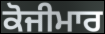
ਕੋਜੀਮਾਰ